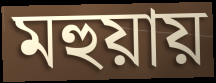
মহুয়ায়